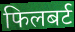
फिलबर्ट